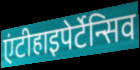
एंटीहाइपेर्टेन्सिव